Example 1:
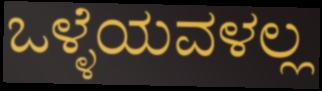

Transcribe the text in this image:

ಒಳ್ಳೆಯವಳಲ್ಲ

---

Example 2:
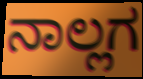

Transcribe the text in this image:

ನಾಲ್ಲಗ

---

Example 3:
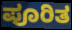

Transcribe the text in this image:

ಪೂರಿತ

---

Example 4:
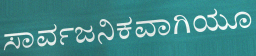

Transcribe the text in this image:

ಸಾರ್ವಜನಿಕವಾಗಿಯೂ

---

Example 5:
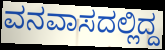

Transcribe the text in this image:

ವನವಾಸದಲ್ಲಿದ್ದ